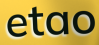
etao